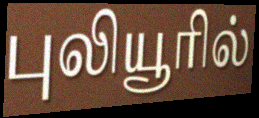
புலியூரில்